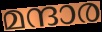
മന്ദാര